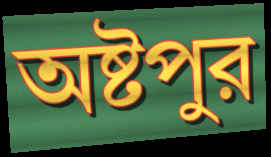
অষ্টপুর